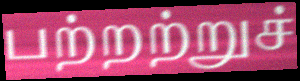
பற்றற்றுச்